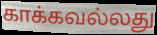
காக்கவல்லது